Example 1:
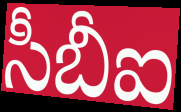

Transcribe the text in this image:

సీబీఐ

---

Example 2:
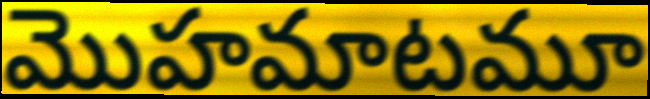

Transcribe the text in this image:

మొహమాటమూ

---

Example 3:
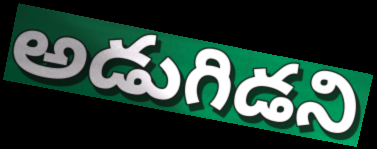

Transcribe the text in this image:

అడుగిడని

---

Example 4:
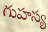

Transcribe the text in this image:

గుహస్య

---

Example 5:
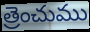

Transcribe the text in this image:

త్రెంచుము